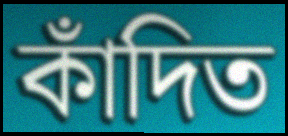
কাঁদিত